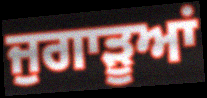
ਜੁਗਾੜੂਆਂ